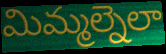
మిమ్మల్నెలా